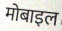
मोबाइल